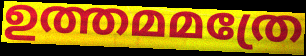
ഉത്തമമത്രേ